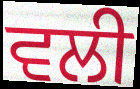
ਵਲੀ